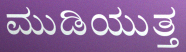
ಮುಡಿಯುತ್ತ